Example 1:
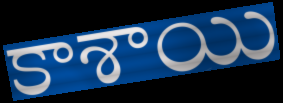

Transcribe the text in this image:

కాశాయి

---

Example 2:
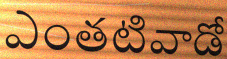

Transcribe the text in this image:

ఎంతటివాడో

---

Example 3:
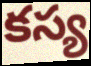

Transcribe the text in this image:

కస్య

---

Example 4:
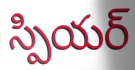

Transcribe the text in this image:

స్పియర్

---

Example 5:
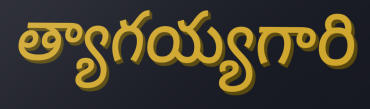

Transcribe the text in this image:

త్యాగయ్యగారి